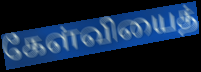
கேள்வியைத்